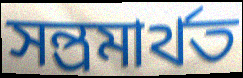
সন্ত্ৰমাৰ্থত